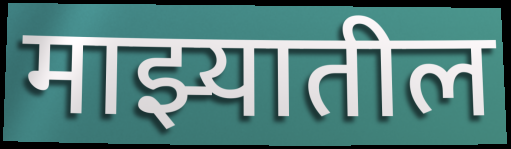
माझ्यातील